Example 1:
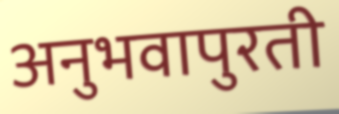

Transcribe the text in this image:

अनुभवापुरती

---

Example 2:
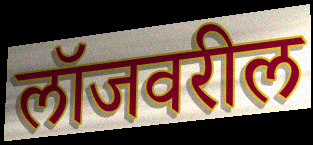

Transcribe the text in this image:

लॉजवरील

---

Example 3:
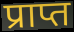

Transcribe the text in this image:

प्राप्त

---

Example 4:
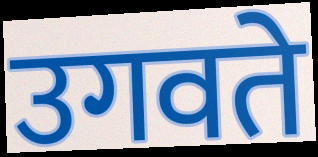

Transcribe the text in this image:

उगवते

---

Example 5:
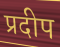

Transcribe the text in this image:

प्रदीप